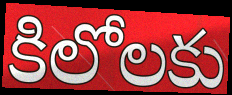
కిలోలకు